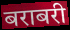
बराबरी